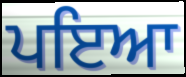
ਪਇਆ